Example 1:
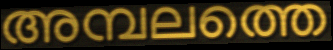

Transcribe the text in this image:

അമ്പലത്തെ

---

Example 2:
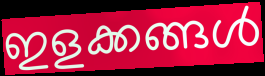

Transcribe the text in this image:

ഇളക്കങ്ങൾ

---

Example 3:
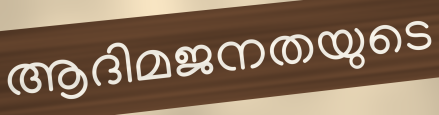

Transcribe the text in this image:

ആദിമജനതയുടെ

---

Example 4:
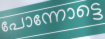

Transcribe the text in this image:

പോന്നോട്ടെ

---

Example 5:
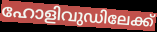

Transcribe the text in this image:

ഹോളിവുഡിലേക്ക്